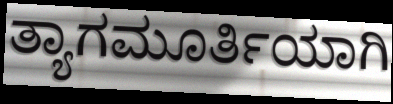
ತ್ಯಾಗಮೂರ್ತಿಯಾಗಿ